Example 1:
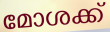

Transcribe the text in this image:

മോശക്ക്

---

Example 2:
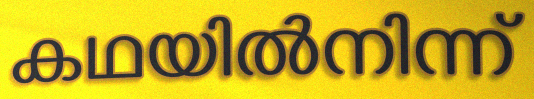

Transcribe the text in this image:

കഥയിൽനിന്ന്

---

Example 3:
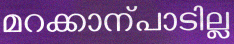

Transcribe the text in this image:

മറക്കാന്പാടില്ല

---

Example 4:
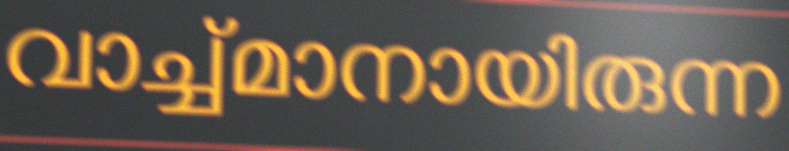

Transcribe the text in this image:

വാച്ച്മാനായിരുന്ന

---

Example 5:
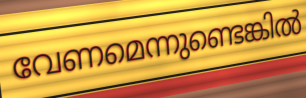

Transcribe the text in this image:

വേണമെന്നുണ്ടെങ്കിൽ